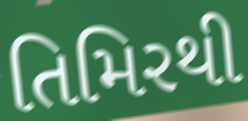
તિમિરથી